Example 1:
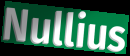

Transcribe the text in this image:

Nullius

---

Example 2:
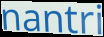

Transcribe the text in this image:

nantri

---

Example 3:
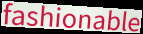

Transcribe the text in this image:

fashionable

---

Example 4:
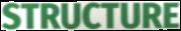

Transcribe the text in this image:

STRUCTURE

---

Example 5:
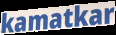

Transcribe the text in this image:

kamatkar